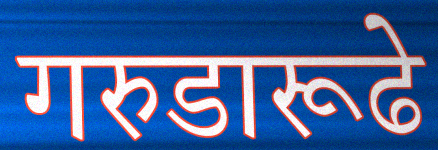
गरुडारूढे